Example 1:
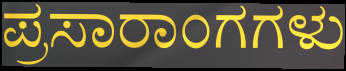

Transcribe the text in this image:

ಪ್ರಸಾರಾಂಗಗಳು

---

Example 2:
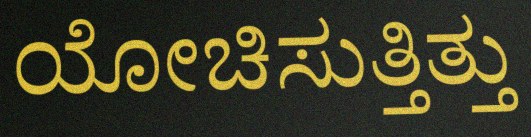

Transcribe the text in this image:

ಯೋಚಿಸುತ್ತಿತ್ತು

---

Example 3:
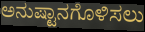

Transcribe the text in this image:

ಅನುಷ್ಟಾನಗೊಳಿಸಲು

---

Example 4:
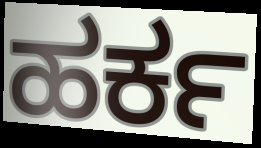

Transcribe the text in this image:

ಹರ್ಕ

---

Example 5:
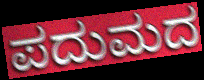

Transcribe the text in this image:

ಪದುಮದ